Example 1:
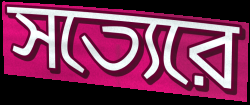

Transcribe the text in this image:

সত্যেরে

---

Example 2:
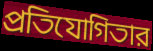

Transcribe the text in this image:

প্রতিযোগিতার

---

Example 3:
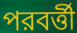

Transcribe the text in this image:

পরবর্ত্তী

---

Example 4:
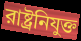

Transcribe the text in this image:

রাষ্ট্রনিযুক্ত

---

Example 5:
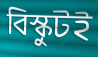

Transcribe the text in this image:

বিস্কুটই